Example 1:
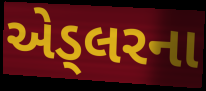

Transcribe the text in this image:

એડ્લરના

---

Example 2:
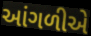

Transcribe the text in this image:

આંગળીએ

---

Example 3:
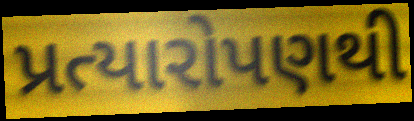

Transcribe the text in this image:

પ્રત્યારોપણથી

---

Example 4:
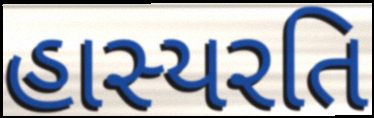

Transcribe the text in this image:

હાસ્યરતિ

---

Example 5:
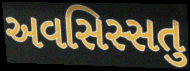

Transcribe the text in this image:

અવસિસ્સતુ